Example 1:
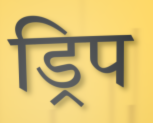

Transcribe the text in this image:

ड्रिप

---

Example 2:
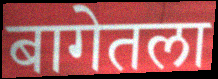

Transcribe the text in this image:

बागेतला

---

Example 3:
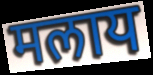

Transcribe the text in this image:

मलाय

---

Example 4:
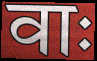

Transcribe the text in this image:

वाः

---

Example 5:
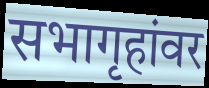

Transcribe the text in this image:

सभागृहांवर